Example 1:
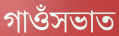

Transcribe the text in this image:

গাওঁসভাত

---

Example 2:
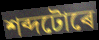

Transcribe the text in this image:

শব্দটোৰে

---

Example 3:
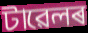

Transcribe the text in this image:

টাৱেলৰ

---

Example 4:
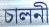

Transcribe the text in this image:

চালনী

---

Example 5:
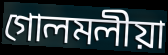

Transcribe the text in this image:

গোলমলীয়া